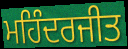
ਮਹਿੰਦਰਜੀਤ